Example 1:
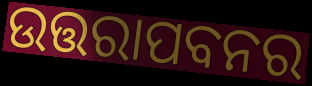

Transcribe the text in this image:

ଉତ୍ତରାପବନର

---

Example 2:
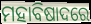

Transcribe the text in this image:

ମହାବିଷାଦରେ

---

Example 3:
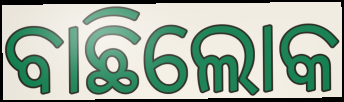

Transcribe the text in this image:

ବାଛିଲୋକ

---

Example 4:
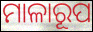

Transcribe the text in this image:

ମାଳାରୂପ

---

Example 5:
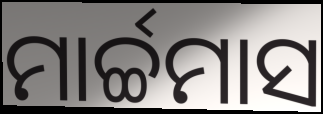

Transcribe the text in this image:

ମାର୍ଚ୍ଚମାସ